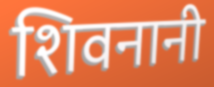
शिवनानी